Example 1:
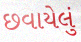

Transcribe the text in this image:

છવાયેલું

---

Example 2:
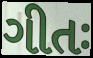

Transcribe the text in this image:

ગીતઃ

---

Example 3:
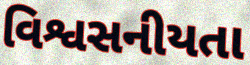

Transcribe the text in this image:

વિશ્વસનીયતા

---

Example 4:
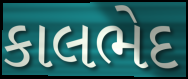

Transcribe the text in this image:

કાલભેદ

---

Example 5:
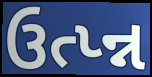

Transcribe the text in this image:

ઉત્પ્ન્ન